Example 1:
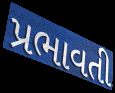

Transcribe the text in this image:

પ્રભાવતી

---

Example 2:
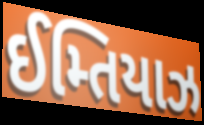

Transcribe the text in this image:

ઈમ્તિયાઝ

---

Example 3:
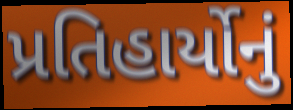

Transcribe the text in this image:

પ્રતિહાર્યોનું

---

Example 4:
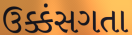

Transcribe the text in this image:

ઉક્કંસગતા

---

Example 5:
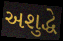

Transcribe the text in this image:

અશુદ્ધે